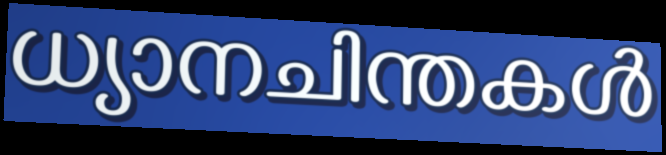
ധ്യാനചിന്തകൾ